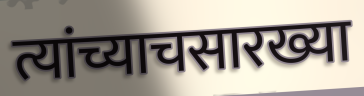
त्यांच्याचसारख्या